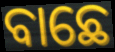
ବାଛେ